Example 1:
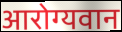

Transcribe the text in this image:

आरोग्यवान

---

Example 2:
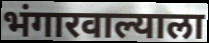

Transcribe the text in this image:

भंगारवाल्याला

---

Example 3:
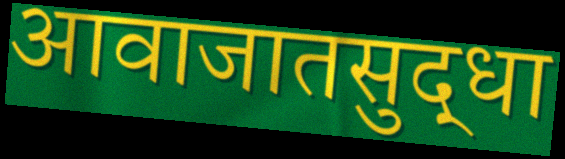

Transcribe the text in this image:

आवाजातसुद्धा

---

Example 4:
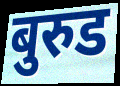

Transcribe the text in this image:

बुरुड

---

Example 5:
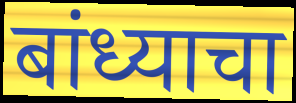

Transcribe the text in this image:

बांध्याचा